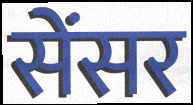
सेंसर